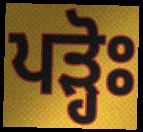
ਪੜ੍ਹੋਃ